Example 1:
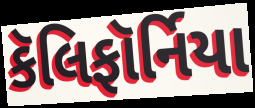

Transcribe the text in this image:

કૅલિફૉર્નિયા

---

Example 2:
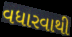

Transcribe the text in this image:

વધારવાથી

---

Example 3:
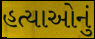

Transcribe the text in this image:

હત્યાઓનું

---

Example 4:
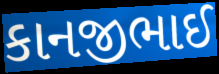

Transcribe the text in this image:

કાનજીભાઈ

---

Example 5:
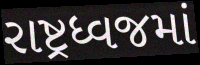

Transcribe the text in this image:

રાષ્ટ્રધ્વજમાં